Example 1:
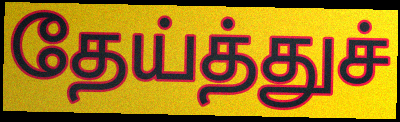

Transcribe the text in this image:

தேய்த்துச்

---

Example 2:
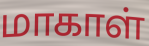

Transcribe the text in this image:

மாகாள்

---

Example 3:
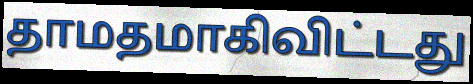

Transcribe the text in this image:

தாமதமாகிவிட்டது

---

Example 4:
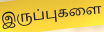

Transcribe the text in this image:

இருப்புகளை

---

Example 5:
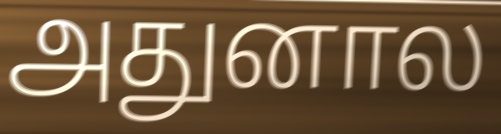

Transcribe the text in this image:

அதுனால